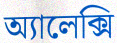
অ্যালেক্সি